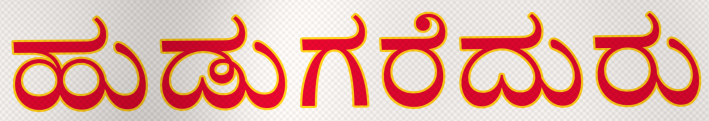
ಹುಡುಗರೆದುರು